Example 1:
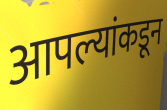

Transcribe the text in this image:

आपल्यांकडून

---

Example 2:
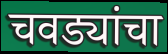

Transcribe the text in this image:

चवड्यांचा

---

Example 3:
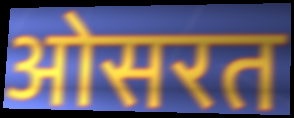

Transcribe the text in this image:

ओसरत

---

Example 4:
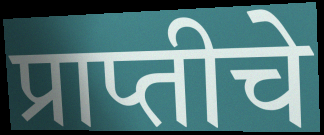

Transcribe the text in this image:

प्राप्तीचे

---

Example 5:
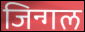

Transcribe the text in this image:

जिन्गल